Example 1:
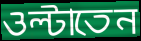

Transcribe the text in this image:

ওল্টাতেন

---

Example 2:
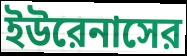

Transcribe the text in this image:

ইউরেনাসের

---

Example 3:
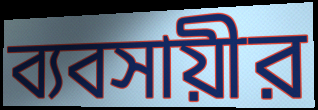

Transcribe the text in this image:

ব্যবসায়ীর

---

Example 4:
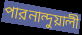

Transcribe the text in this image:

পারনান্দুয়ালী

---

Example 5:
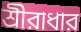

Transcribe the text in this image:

শ্রীরাধার